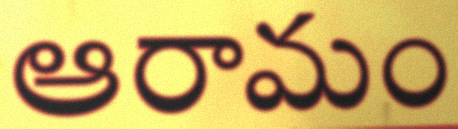
ఆరామం